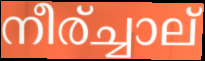
നീര്ച്ചാല്